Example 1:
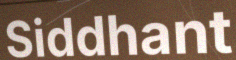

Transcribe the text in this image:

Siddhant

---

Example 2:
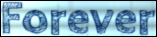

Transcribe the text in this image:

Forever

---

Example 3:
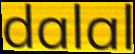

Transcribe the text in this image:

dalal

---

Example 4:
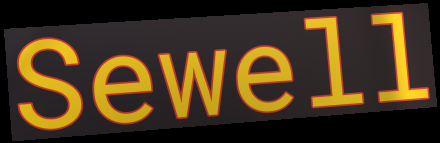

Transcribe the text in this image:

Sewell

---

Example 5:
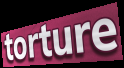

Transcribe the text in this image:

torture